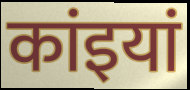
कांइयां